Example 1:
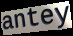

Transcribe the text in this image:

antey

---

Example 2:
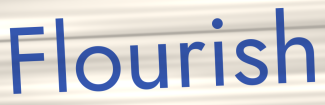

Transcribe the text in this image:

Flourish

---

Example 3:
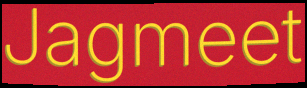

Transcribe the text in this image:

Jagmeet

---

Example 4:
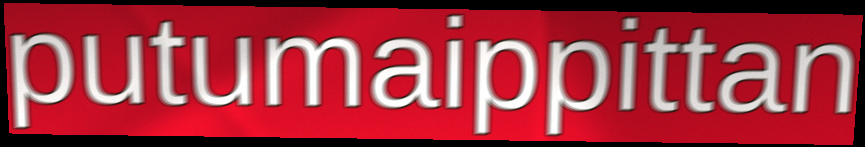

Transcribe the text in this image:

putumaippittan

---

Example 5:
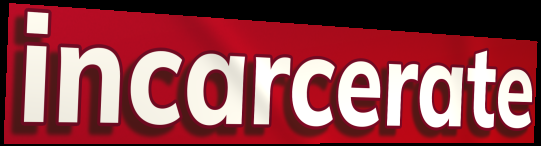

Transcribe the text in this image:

incarcerate